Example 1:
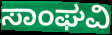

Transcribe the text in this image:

ಸಾಂಘವಿ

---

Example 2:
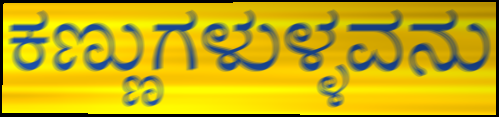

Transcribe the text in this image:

ಕಣ್ಣುಗಳುಳ್ಳವನು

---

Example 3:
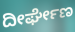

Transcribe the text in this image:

ದೀರ್ಘೇಣ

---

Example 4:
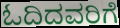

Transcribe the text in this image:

ಓದಿದವರಿಗೆ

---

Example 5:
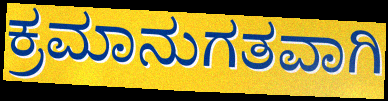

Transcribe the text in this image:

ಕ್ರಮಾನುಗತವಾಗಿ